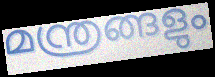
മന്ത്രങ്ങളും